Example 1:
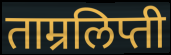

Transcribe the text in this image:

ताम्रलिप्ती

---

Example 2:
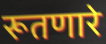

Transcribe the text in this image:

रूतणारे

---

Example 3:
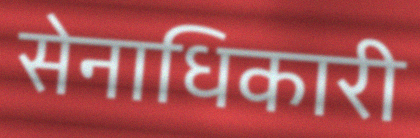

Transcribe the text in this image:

सेनाधिकारी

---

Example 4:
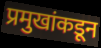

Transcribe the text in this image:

प्रमुखांकडून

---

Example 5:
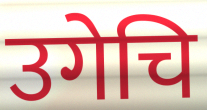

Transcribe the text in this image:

उगेचि